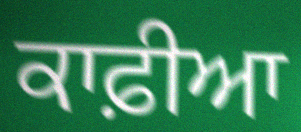
ਕਾਫ਼ੀਆ